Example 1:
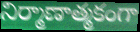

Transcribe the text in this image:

నిర్మాణాత్మకంగా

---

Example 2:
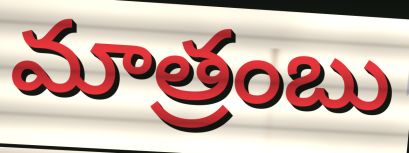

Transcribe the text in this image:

మాత్రంబు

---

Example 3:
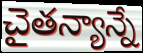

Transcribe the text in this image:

చైతన్యాన్నే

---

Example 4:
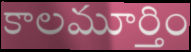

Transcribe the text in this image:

కాలమూర్తిం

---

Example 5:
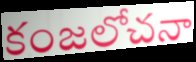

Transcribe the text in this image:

కంజలోచనా